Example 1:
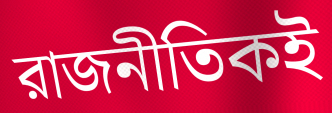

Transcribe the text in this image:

রাজনীতিকই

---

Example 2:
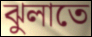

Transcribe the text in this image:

ঝুলাতে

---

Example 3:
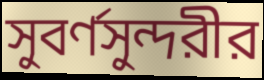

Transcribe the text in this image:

সুবর্ণসুন্দরীর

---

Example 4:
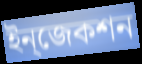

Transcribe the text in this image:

ইন্‌জেকশন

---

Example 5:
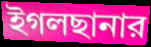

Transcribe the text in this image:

ইগলছানার